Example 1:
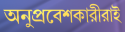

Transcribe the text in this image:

অনুপ্রবেশকারীরাই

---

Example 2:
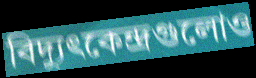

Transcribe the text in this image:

বিদ্যুৎকেন্দ্রগুলোও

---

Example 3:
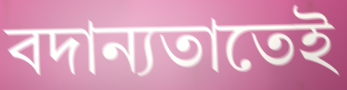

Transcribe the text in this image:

বদান্যতাতেই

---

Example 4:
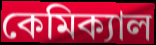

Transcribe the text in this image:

কেমিক্যাল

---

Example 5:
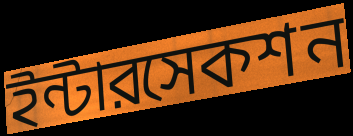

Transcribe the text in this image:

ইন্টারসেকশন